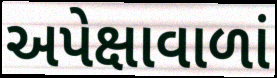
અપેક્ષાવાળાં